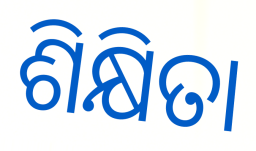
ଶିକ୍ଷିତା